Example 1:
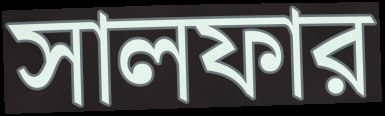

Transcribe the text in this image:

সালফার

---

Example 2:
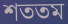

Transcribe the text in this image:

শততম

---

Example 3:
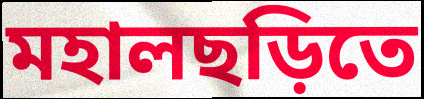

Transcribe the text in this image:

মহালছড়িতে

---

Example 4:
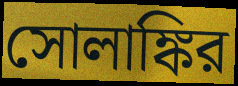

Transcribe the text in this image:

সোলাঙ্কির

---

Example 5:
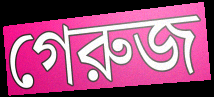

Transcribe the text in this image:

গেরুজ